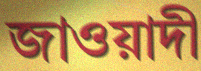
জাওয়াদী